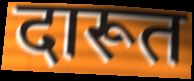
दारूत